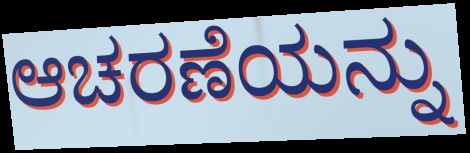
ಆಚರಣೆಯನ್ನು